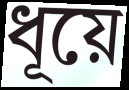
ধূয়ে